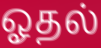
ஓதல்